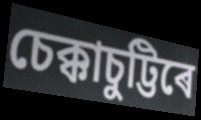
চেক্কাচুট্টিৰে